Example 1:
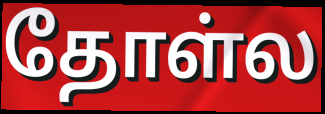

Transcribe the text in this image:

தோள்ல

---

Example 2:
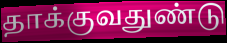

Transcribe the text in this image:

தாக்குவதுண்டு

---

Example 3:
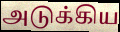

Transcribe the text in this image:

அடுக்கிய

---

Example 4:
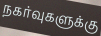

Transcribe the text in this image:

நகர்வுகளுக்கு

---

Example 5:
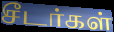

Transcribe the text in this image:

சீடர்கள்